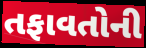
તફાવતોની